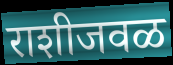
राशीजवळ